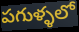
పగుళ్ళలో